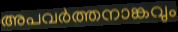
അപവർത്തനാങ്കവും